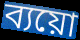
ব্যয়ো